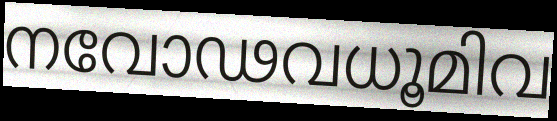
നവോഢവധൂമിവ